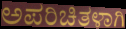
ಅಪರಿಚಿತಳಾಗಿ